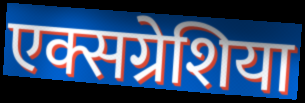
एक्सग्रेशिया